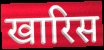
खारिस